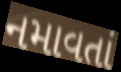
નમાવતાં